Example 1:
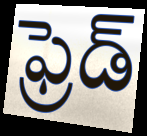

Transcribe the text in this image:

ఫ్రెడ్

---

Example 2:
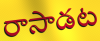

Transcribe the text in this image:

రాసాడట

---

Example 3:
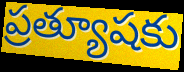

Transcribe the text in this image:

ప్రత్యూషకు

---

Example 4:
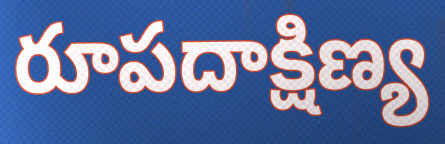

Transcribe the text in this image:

రూపదాక్షిణ్య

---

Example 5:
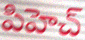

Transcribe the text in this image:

పిహెచ్